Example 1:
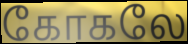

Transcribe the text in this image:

கோகலே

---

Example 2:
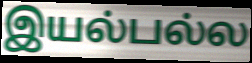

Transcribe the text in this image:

இயல்பல்ல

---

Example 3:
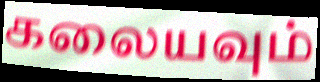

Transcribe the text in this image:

கலையவும்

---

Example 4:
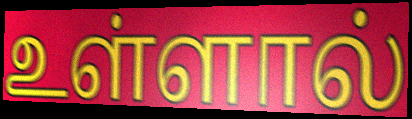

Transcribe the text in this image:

உள்ளால்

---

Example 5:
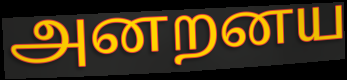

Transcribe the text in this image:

அனறனய